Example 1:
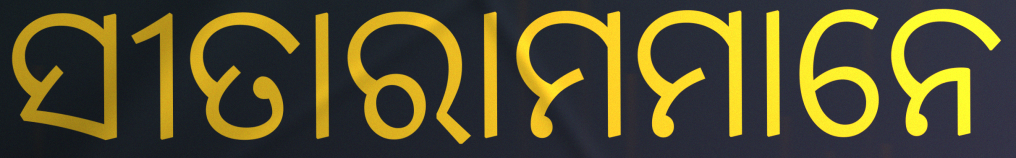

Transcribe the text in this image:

ସୀତାରାମମାନେ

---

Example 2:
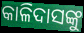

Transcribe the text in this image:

କାଳିଦାସଙ୍କୁ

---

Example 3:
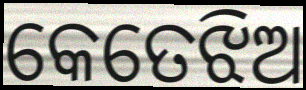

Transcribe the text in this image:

କେତେଝିଅ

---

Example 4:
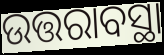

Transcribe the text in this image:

ଉତ୍ତରାବସ୍ଥା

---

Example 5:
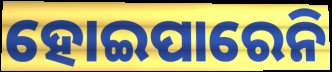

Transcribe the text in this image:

ହୋଇପାରେନି